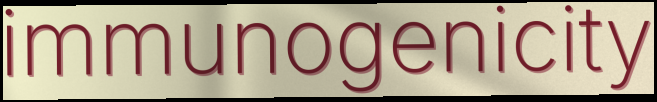
immunogenicity